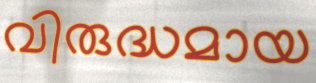
വിരുദ്ധമായ